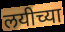
लयीच्या